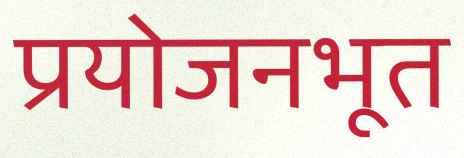
प्रयोजनभूत